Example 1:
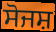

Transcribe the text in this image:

ਸੋਜਸ਼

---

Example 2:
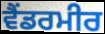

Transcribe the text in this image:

ਵੈਂਡਰਮੀਰ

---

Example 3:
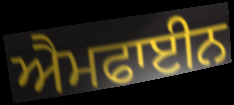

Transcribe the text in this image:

ਐਮਫਾਈਨ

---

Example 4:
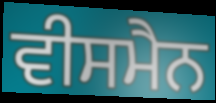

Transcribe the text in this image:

ਵੀਸਮੈਨ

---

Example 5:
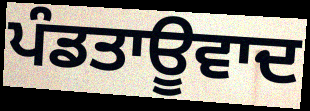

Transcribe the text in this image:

ਪੰਡਤਾਊਵਾਦ